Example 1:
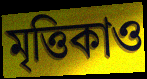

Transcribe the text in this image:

মৃত্তিকাও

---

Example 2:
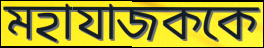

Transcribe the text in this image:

মহাযাজককে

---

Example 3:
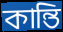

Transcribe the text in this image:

কান্তি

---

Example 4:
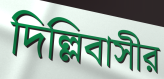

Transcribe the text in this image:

দিল্লিবাসীর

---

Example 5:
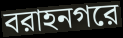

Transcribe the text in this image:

বরাহনগরে